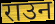
राउन